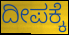
ದೀಪಕ್ಕೆ